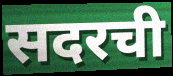
सदरची